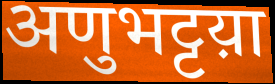
अणुभट्टय़ा